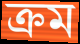
ক্রম